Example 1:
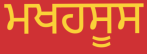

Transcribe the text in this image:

ਮਖਹਸੂਸ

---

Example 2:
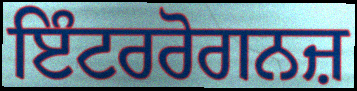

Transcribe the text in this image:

ਇੰਟਰਰੋਗਨਜ਼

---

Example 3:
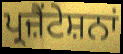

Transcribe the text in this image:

ਪ੍ਰਜ਼ੈਂਟੇਸ਼ਨਾਂ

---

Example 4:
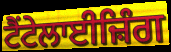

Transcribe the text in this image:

ਟੈਂਟੇਲਾਈਜ਼ਿੰਗ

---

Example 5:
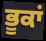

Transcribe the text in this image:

ਭੂਕਾਂ